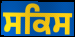
ਸਕਿਸ